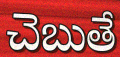
చెబుతే